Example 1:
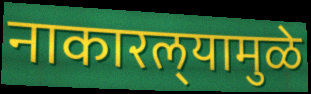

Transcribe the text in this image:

नाकारल्यामुळे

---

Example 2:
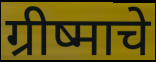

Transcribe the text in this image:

ग्रीष्माचे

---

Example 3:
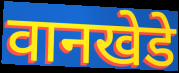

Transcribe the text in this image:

वानखेडे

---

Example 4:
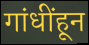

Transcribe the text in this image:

गांधींहून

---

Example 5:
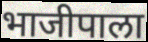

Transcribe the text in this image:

भाजीपाला